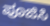
ಪೂಜಿಸಿ